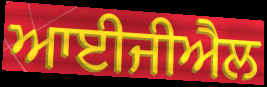
ਆਈਜੀਐਲ